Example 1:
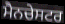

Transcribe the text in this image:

ਮੈਨਚੇਸਟਰ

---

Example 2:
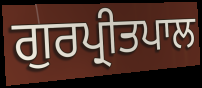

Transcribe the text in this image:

ਗੁਰਪ੍ਰੀਤਪਾਲ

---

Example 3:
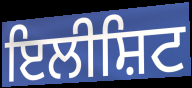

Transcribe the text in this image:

ਇਲੀਸ਼ਿਟ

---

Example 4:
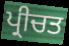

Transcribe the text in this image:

ਪ੍ਰੀਚਤ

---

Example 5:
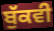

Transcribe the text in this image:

ਬੁੱਕਵੀ